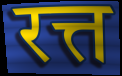
रत्त